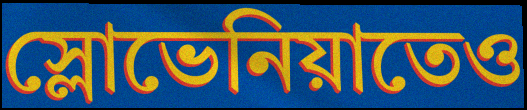
স্লোভেনিয়াতেও